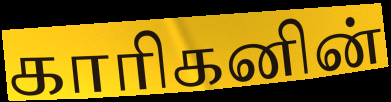
காரிகனின்